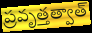
ప్రవృత్తత్వాత్